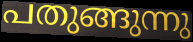
പതുങ്ങുന്നു